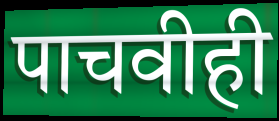
पाचवीही